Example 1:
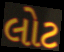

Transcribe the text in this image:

લોટ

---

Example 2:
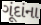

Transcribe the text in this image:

ગૂંદાંના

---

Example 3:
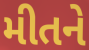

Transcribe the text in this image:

મીતને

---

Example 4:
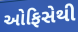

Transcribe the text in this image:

ઓફિસેથી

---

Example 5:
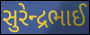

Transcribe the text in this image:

સુરેન્દ્રભાઈ